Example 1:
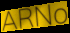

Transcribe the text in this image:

ARNo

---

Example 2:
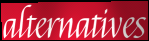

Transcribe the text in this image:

alternatives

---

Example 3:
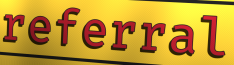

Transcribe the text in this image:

referral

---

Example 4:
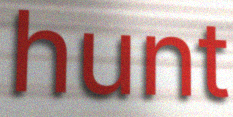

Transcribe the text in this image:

hunt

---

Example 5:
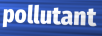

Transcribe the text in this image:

pollutant